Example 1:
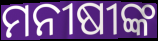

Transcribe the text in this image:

ମନୀଷୀଙ୍କ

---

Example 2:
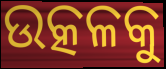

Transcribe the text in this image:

ଉତ୍କଳକୁ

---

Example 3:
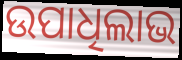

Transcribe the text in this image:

ଉପାଧିଲାଭ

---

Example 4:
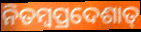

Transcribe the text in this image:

ନିତମ୍ବପ୍ରଦେଶାତ୍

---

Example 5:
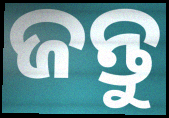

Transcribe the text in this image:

ଜନ୍ତୁ